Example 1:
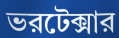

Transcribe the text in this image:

ভরটেক্সার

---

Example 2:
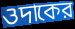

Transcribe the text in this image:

ওদাকের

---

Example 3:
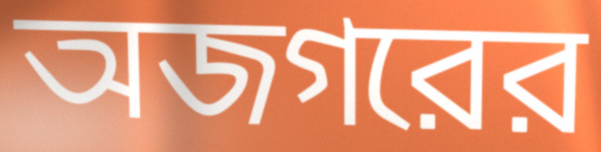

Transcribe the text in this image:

অজগরের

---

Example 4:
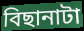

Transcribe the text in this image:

বিছানাটা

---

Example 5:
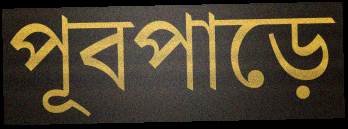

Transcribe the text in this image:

পূবপাড়ে